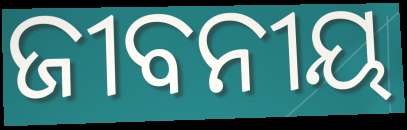
ଜୀବନୀୟ